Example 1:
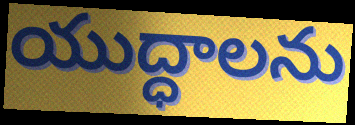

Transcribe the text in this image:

యుద్ధాలను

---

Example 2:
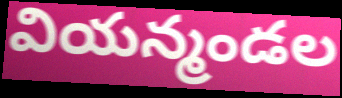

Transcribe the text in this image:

వియన్మండల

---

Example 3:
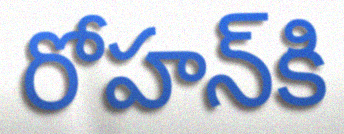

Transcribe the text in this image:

రోహన్‌కి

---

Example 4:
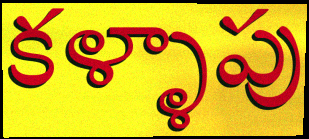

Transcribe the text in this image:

కళ్ళాపు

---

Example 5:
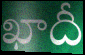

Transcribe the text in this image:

ఖాదీ